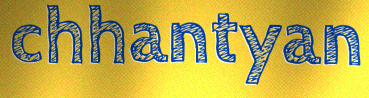
chhantyan